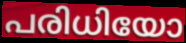
പരിധിയോ